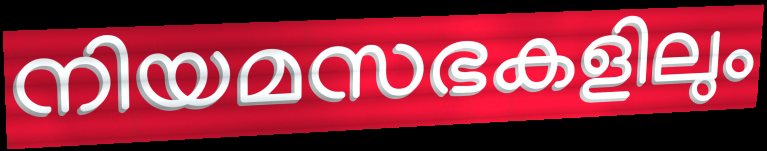
നിയമസഭകളിലും